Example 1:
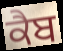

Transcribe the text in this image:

ਕੈਬ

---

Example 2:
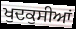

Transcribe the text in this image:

ਖੁਦਕੁਸੀਆਂ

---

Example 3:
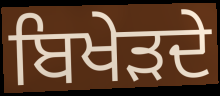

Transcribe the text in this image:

ਬਿਖੇੜਦੇ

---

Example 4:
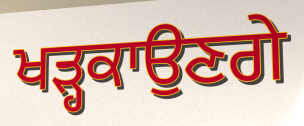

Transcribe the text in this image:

ਖੜ੍ਹਕਾਉਣਗੇ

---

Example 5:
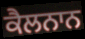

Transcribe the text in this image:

ਕੈਲਨਾਨ